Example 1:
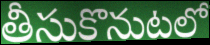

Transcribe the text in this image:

తీసుకొనుటలో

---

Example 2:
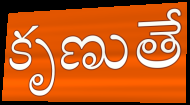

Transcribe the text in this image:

కృణుతే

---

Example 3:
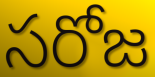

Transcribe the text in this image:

సరోజ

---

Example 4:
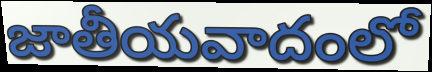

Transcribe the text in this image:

జాతీయవాదంలో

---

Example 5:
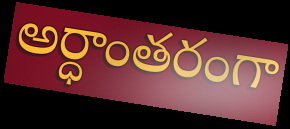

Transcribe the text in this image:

అర్ధాంతరంగా